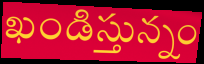
ఖండిస్తున్నం